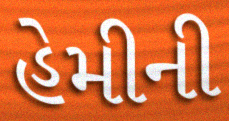
હેમીની